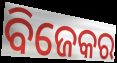
ବିଜେକର